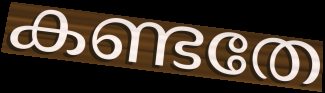
കണ്ടതേ